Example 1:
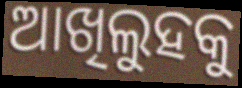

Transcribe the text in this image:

ଆଖିଲୁହକୁ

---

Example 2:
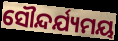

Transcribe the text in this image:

ସୌନ୍ଦର୍ଯ୍ୟମୟ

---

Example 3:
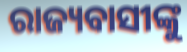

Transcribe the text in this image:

ରାଜ୍ୟବାସୀଙ୍କୁ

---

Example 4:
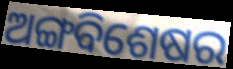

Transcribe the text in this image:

ଅଙ୍ଗବିଶେଷର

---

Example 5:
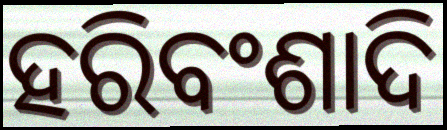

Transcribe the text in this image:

ହରିବଂଶାଦି